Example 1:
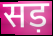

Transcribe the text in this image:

सड़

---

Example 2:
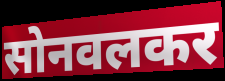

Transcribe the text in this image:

सोनवलकर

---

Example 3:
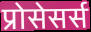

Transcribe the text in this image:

प्रोसेसर्स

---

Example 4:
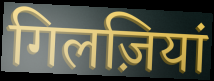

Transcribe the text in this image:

गिलज़ियां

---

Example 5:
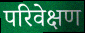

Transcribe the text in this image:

परिवेक्षण